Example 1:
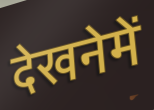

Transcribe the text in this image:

देखनेमें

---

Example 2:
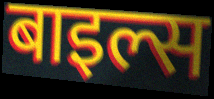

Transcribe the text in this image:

बाइल्स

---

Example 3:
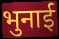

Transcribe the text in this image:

भुनाई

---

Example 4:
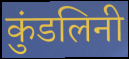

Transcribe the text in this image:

कुंडलिनी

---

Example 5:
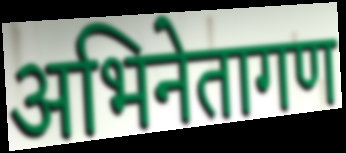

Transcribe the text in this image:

अभिनेतागण